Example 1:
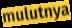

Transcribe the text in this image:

mulutnya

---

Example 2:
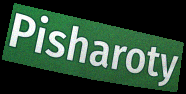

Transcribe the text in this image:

Pisharoty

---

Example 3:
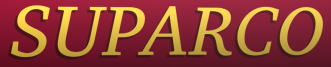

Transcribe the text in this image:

SUPARCO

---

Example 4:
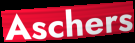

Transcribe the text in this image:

Aschers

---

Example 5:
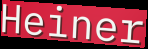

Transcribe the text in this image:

Heiner